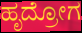
ಹೃದ್ರೋಗ